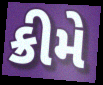
ક્રીમે